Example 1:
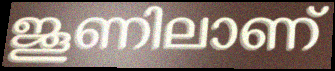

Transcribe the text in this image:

ജൂണിലാണ്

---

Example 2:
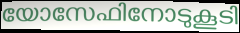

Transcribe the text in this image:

യോസേഫിനോടുകൂടി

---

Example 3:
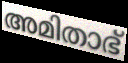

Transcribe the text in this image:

അമിതാഭ്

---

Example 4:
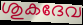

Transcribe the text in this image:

ശുകദേവ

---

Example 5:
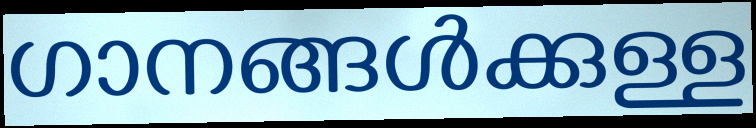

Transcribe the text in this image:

ഗാനങ്ങൾക്കുള്ള